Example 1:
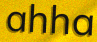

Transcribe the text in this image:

ahha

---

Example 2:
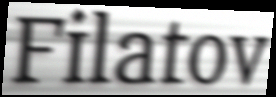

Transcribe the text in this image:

Filatov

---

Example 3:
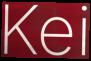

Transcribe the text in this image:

Kei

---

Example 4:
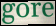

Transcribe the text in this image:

gore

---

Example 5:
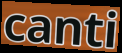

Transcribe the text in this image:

canti